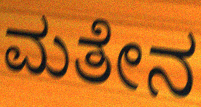
ಮತೇನ